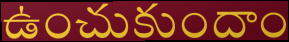
ఉంచుకుందాం